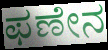
ಫಣೇನ